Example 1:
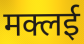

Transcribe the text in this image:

मक्लई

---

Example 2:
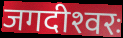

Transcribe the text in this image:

जगदीश्वरः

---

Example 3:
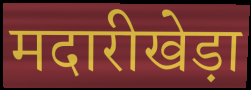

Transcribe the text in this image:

मदारीखेड़ा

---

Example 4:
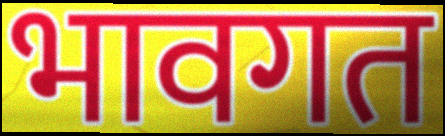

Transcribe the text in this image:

भावगत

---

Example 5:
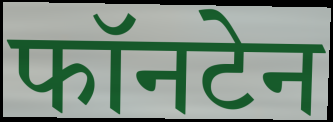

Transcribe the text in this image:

फॉनटेन